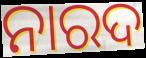
ନାରଦ